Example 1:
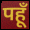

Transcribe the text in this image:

पहूँ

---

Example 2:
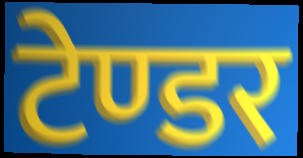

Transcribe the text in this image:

टेण्‍डर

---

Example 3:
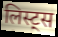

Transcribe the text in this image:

लिस्ट्स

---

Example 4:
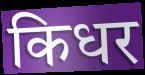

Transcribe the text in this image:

किधर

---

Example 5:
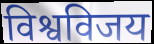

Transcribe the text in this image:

विश्वविजय